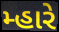
મ્હારે